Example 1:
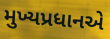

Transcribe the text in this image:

મુખ્યપ્રધાનએ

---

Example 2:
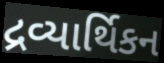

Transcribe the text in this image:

દ્રવ્યાર્થિકન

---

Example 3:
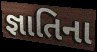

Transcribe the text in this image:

જ્ઞાતિના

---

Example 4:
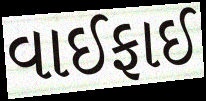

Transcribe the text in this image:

વાઈફાઈ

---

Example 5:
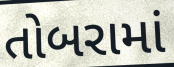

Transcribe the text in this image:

તોબરામાં